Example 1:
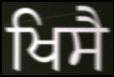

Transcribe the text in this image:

ਖਿਸੈ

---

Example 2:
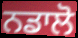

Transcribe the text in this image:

ਨਡਾਲੋ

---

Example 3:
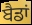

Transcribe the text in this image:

ਬੈਡਾਂ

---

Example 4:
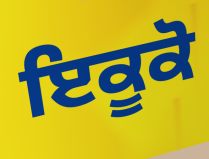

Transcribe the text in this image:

ਇਕੂਕੋ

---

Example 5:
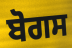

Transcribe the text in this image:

ਬੋਗਸ